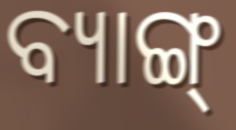
ବ୍ୟାଙ୍ଗ୍